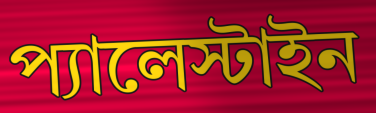
প্যালেস্টাইন